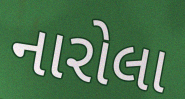
નારોલા